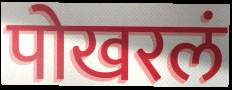
पोखरलं